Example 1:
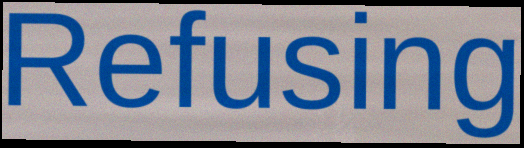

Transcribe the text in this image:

Refusing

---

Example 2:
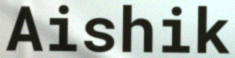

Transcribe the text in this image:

Aishik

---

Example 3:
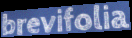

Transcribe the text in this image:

brevifolia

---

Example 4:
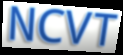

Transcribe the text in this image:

NCVT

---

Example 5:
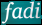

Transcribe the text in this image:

fadi